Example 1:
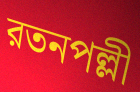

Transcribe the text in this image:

রতনপল্লী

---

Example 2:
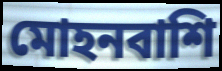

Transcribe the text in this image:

মোহনবাশি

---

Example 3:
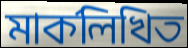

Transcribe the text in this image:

মার্কলিখিত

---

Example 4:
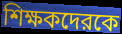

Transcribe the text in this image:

শিক্ষকদেরকে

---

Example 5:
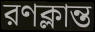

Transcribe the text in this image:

রণক্লান্ত